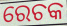
ରେଚକ